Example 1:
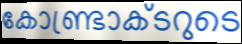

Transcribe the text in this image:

കോണ്ട്രാക്ടറുടെ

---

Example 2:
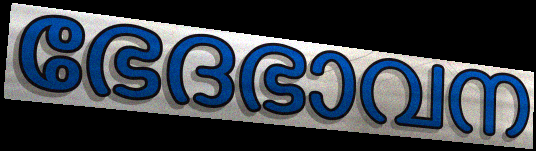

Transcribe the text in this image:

ഭേദഭാവന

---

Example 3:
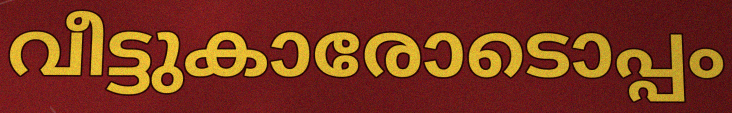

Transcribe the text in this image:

വീട്ടുകാരോടൊപ്പം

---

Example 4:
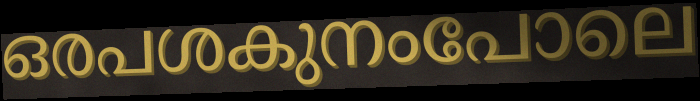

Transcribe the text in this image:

ഒരപശകുനംപോലെ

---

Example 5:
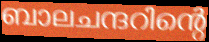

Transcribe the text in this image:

ബാലചന്ദറിന്റെ